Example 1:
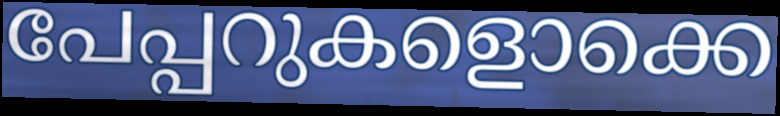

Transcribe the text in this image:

പേപ്പറുകളൊക്കെ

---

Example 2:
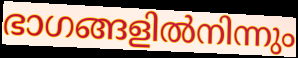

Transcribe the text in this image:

ഭാഗങ്ങളിൽനിന്നും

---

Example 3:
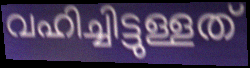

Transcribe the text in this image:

വഹിച്ചിട്ടുള്ളത്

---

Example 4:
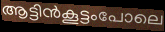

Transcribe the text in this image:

ആട്ടിൻകൂട്ടംപോലെ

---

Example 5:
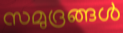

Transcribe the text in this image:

സമുദ്രങ്ങൾ